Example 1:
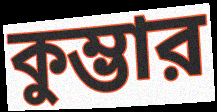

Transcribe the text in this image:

কুম্ভার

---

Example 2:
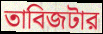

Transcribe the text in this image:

তাবিজটার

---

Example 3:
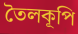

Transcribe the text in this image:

তৈলকূপি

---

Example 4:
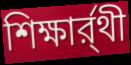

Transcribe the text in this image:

শিক্ষার্র্থী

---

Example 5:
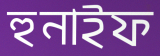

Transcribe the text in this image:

হুনাইফ